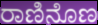
ರಾಣಿನೊಣ